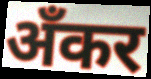
अँकर